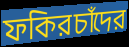
ফকিরচাঁদের